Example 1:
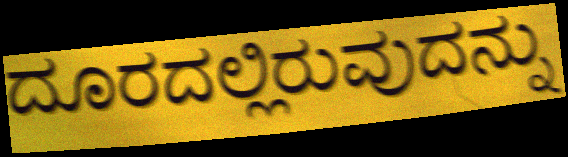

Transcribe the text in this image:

ದೂರದಲ್ಲಿರುವುದನ್ನು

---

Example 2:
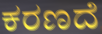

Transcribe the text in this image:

ಕರಣದೆ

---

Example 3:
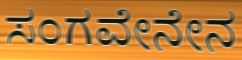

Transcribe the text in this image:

ಸಂಗವೇನೇನ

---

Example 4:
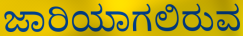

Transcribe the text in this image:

ಜಾರಿಯಾಗಲಿರುವ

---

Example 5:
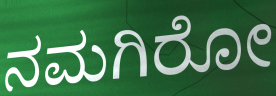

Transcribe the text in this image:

ನಮಗಿರೋ